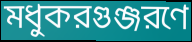
মধুকরগুঞ্জরণে